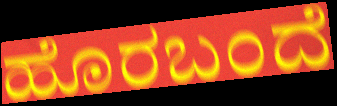
ಹೊರಬಂದೆ